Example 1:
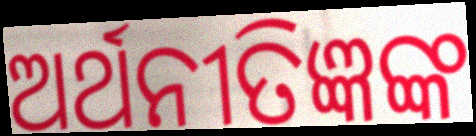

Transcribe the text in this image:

ଅର୍ଥନୀତିଜ୍ଞଙ୍କ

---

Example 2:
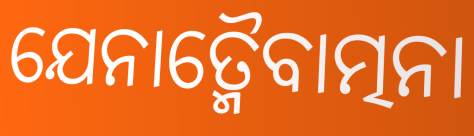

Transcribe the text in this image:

ଯେନାତ୍ମୈବାତ୍ମନା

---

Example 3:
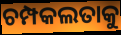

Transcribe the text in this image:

ଚମ୍ପକଲତାକୁ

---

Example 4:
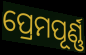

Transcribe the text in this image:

ପ୍ରେମପୂର୍ଣ୍ଣ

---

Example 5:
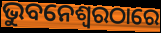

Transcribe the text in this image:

ଭୁବନେଶ୍ଵରଠାରେ